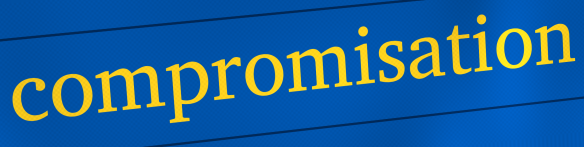
compromisation